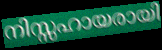
നിസ്സഹായരായി